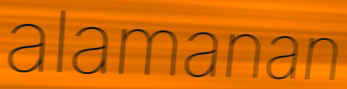
alamanan